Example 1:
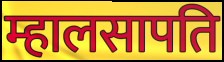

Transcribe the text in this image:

म्हालसापति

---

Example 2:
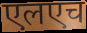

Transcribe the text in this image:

एलएच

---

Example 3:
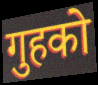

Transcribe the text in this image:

गुहको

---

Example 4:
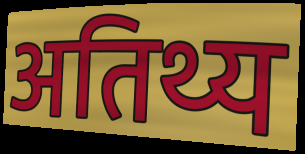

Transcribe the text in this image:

अतिथ्य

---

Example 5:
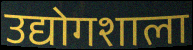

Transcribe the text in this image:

उद्योगशाला